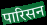
पारिसन